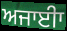
ਅਜਾਈਾ